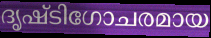
ദൃഷ്ടിഗോചരമായ